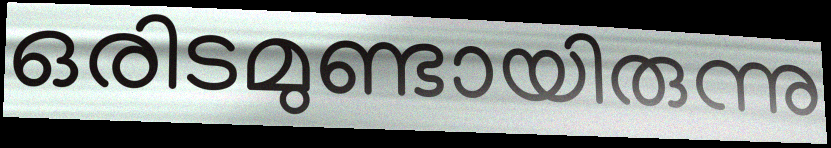
ഒരിടമുണ്ടായിരുന്നു